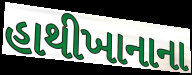
હાથીખાનાના